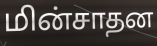
மின்சாதன